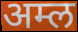
अम्ल